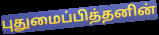
புதுமைப்பித்தனின்